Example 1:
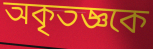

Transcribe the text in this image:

অকৃতজ্ঞকে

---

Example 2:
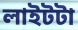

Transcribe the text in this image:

লাইটটা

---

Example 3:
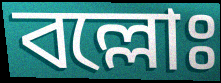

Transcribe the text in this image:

বল্লোঃ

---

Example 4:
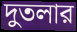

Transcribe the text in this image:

দুতলার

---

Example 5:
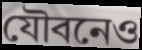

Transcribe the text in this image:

যৌবনেও